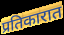
प्रतिकारात